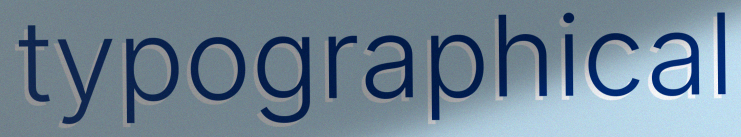
typographical